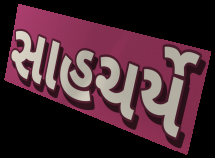
સાહચર્યે